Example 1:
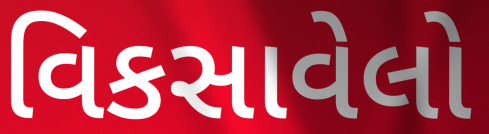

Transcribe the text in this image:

વિકસાવેલો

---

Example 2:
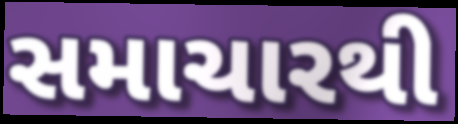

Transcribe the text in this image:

સમાચારથી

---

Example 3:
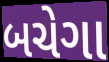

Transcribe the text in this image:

બચેગા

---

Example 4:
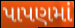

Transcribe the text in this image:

પાપણમાં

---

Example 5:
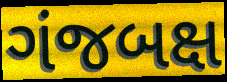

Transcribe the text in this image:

ગંજબક્ષ